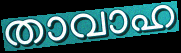
താവാഹ